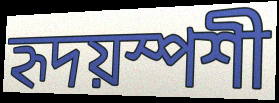
হৃদয়স্পশী